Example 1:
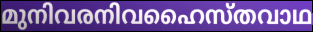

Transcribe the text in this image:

മുനിവരനിവഹൈസ്തവാഥ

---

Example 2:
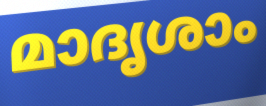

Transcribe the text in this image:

മാദൃശാം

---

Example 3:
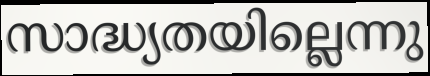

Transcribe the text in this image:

സാദ്ധ്യതയില്ലെന്നു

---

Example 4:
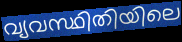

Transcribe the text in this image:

വ്യവസ്ഥിതിയിലെ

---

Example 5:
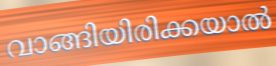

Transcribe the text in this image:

വാങ്ങിയിരിക്കയാൽ